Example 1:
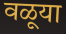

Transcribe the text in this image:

वळूया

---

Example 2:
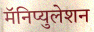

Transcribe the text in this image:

मॅनिप्युलेशन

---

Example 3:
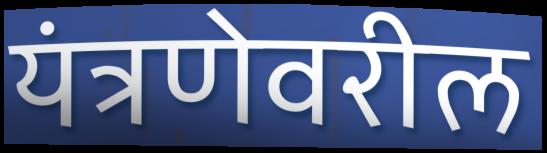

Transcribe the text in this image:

यंत्रणेवरील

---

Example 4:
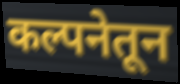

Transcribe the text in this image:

कल्पनेतून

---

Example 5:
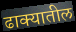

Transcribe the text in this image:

ढाक्यातील